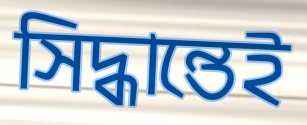
সিদ্ধান্তেই